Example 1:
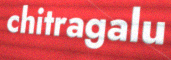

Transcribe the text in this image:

chitragalu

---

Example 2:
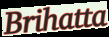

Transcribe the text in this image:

Brihatta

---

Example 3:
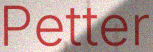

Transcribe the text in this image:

Petter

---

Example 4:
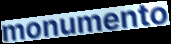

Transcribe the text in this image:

monumento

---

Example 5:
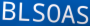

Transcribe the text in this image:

BLSOAS